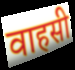
वाहसी